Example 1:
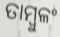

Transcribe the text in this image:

ତାମ୍ବୁଳଂ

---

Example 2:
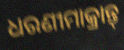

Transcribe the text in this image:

ଧରଣୀମାକ୍ରାନ୍ତ୍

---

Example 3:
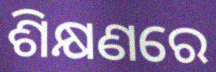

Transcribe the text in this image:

ଶିକ୍ଷଣରେ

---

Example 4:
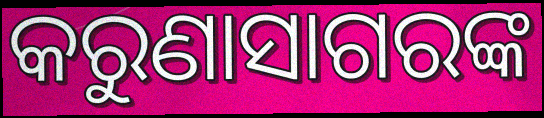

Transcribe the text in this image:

କରୁଣାସାଗରଙ୍କ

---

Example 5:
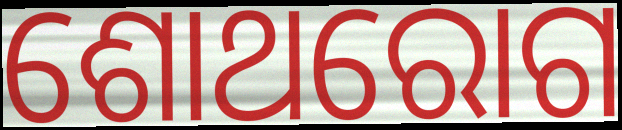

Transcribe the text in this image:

ଶୋଥରୋଗ